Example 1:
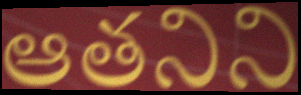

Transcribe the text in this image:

ఆతనిని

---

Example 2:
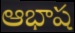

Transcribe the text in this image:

ఆభాష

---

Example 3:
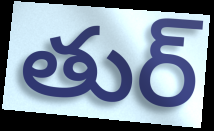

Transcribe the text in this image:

తుర్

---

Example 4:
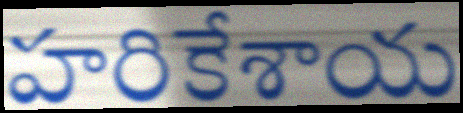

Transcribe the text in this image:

హరికేశాయ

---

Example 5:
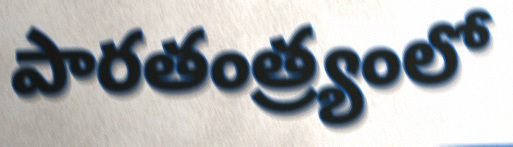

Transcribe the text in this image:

పారతంత్ర్యంలో